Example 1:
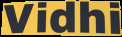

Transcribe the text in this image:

Vidhi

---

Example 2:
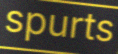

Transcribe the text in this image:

spurts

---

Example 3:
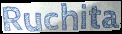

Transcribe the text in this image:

Ruchita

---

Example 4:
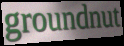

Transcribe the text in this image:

groundnut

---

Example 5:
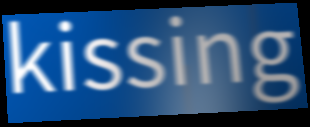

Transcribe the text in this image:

kissing